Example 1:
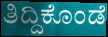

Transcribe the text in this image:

ತಿದ್ದಿಕೊಂಡೆ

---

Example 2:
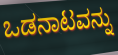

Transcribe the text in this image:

ಒಡನಾಟವನ್ನು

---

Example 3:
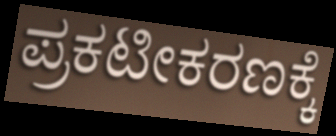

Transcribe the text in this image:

ಪ್ರಕಟೀಕರಣಕ್ಕೆ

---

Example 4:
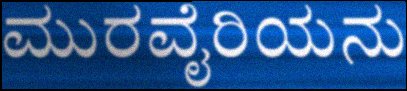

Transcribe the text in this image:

ಮುರವೈರಿಯನು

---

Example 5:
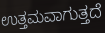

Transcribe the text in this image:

ಉತ್ತಮವಾಗುತ್ತದೆ